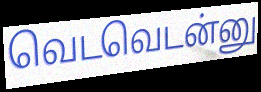
வெடவெடன்னு